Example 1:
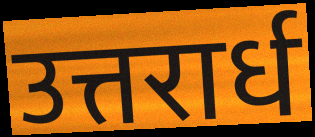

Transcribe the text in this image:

उत्तरार्ध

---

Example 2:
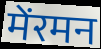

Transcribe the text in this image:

मेंरमन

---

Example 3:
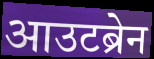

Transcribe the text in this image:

आउटब्रेन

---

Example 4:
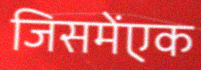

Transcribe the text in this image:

जिसमेंएक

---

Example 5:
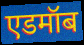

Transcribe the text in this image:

एडमॉब